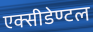
एक्सीडेण्टल